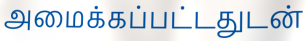
அமைக்கப்பட்டதுடன்